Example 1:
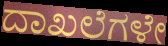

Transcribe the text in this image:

ದಾಖಲೆಗಳೇ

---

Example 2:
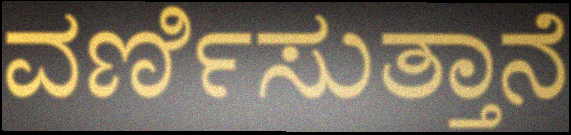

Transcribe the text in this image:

ವರ್ಣಿಸುತ್ತಾನೆ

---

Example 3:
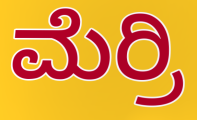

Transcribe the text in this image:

ಮೆರ್ರಿ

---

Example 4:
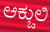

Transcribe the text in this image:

ಆಕ್ಚುಲಿ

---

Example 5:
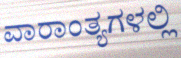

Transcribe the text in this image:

ವಾರಾಂತ್ಯಗಳಲ್ಲಿ